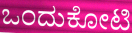
ಒಂದುಕೋಟಿ